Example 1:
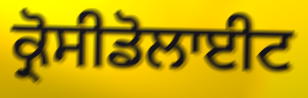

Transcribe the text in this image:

ਕ੍ਰੋਸੀਡੋਲਾਈਟ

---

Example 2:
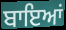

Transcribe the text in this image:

ਬਾਇਆਂ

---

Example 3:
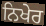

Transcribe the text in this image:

ਨਿਖੇਰ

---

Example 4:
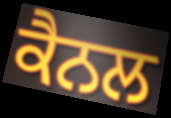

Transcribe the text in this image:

ਕੈਨਲ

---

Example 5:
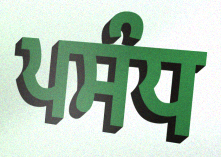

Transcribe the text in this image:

ਪਸੰਧ